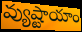
వ్యుష్టాయాం